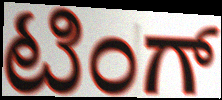
ಟಿಂಗ್